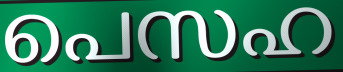
പെസഹ